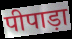
पीपाड़ा